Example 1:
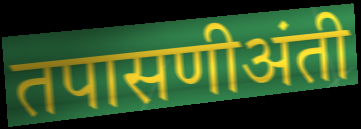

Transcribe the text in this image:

तपासणीअंती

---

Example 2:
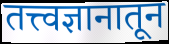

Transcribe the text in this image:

तत्त्वज्ञानातून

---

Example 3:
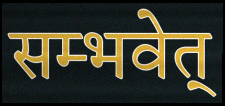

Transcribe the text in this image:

सम्भवेत्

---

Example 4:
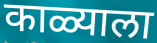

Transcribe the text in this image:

काळ्याला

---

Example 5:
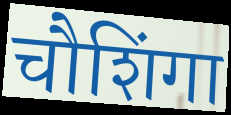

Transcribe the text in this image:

चौशिंगा